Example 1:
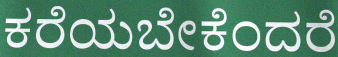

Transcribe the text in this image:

ಕರೆಯಬೇಕೆಂದರೆ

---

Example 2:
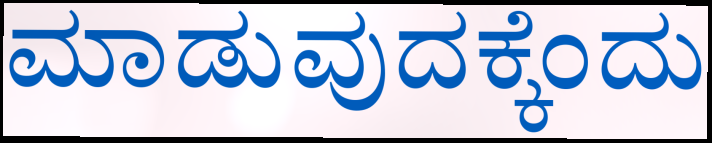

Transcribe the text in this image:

ಮಾಡುವುದಕ್ಕೆಂದು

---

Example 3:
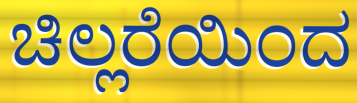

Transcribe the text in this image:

ಚಿಲ್ಲರೆಯಿಂದ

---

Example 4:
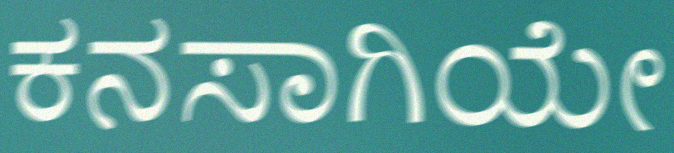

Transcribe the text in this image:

ಕನಸಾಗಿಯೇ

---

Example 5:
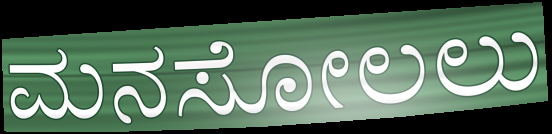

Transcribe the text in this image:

ಮನಸೋಲಲು